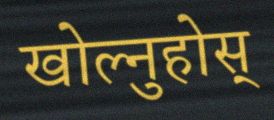
खोल्नुहोस्